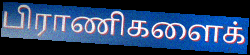
பிராணிகளைக்